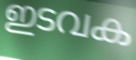
ഇടവക